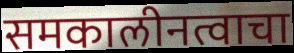
समकालीनत्वाचा